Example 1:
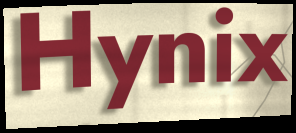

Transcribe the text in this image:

Hynix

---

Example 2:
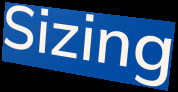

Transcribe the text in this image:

Sizing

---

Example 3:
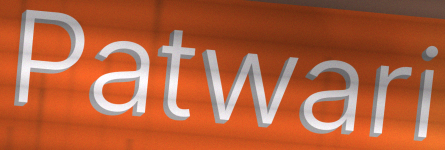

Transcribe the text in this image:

Patwari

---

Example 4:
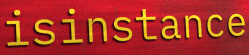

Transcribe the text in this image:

isinstance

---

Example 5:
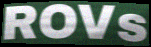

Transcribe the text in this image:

ROVs